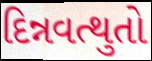
દિન્નવત્થુતો